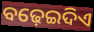
ବଢ଼େଇଦିଏ